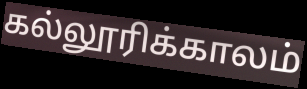
கல்லூரிக்காலம்